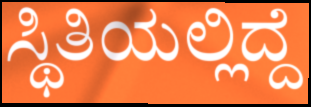
ಸ್ಥಿತಿಯಲ್ಲಿದ್ದೆ